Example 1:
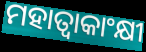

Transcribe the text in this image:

ମହାତ୍ୱାକାଂକ୍ଷୀ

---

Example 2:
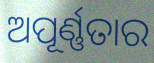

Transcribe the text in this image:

ଅପୂର୍ଣ୍ଣତାର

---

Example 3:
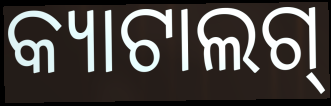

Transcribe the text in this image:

କ୍ୟାଟାଲଗ୍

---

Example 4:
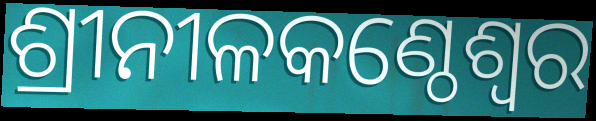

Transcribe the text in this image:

ଶ୍ରୀନୀଳକଣ୍ଠେଶ୍ଵର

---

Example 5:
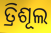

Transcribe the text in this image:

ତ୍ରିଶୂଲ